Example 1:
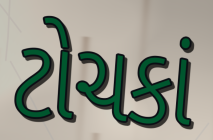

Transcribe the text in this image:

ટોચકાં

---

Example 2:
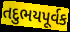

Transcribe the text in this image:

તદુભયપૂર્વક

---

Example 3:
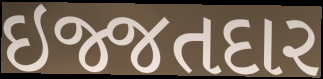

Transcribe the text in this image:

ઇજ્જતદાર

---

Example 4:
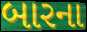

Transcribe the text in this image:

બારના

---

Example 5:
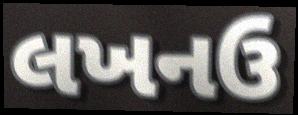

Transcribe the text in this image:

લખનઉ